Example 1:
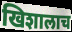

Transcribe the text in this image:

खिशालाच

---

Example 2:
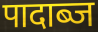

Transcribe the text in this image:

पादाब्ज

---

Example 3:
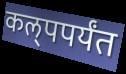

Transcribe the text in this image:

कल्पपर्यंत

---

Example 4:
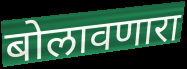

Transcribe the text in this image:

बोलावणारा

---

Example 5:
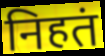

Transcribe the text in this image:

निहतं